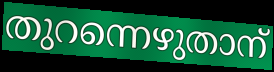
തുറന്നെഴുതാന്